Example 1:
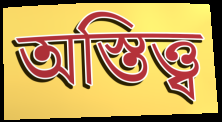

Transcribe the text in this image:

অস্তিত্ত্ব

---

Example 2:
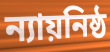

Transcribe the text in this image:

ন্যায়নিষ্ঠ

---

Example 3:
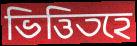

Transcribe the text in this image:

ভিত্তিতহে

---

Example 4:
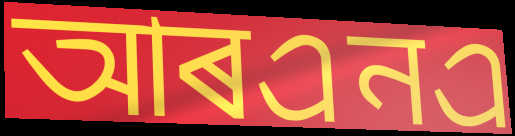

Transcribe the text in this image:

আৰএনএ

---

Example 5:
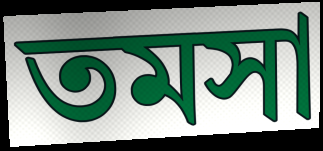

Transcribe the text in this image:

তমসা